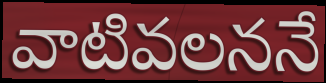
వాటివలననే